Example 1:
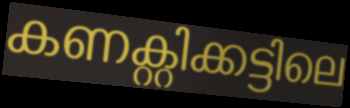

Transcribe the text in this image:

കണക്റ്റിക്കട്ടിലെ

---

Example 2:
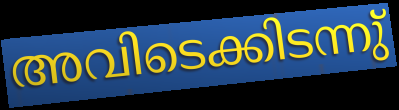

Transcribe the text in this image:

അവിടെക്കിടന്നു്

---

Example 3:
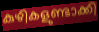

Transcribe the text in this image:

കുഴികളുണ്ടാക്കി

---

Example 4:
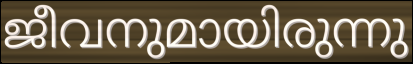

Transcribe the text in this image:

ജീവനുമായിരുന്നു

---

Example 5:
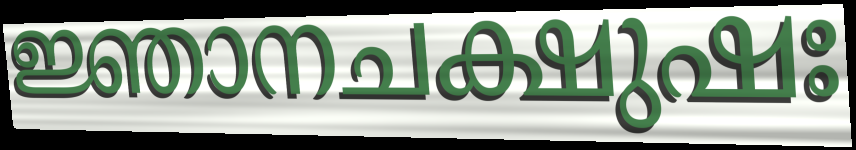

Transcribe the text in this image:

ജ്ഞാനചക്ഷുഷഃ